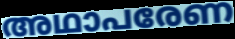
അഥാപരേണ